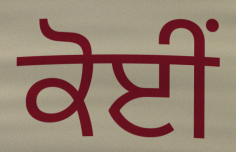
ਕੋਈਂ